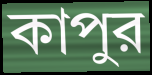
কাপুর